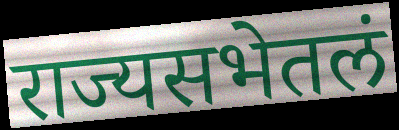
राज्यसभेतलं